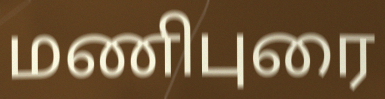
மணிபுரை